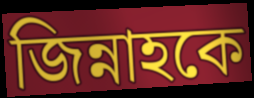
জিন্নাহকে